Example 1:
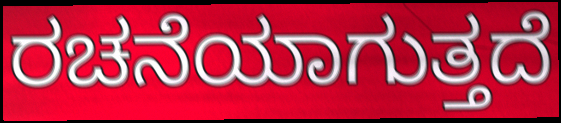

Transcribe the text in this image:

ರಚನೆಯಾಗುತ್ತದೆ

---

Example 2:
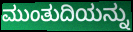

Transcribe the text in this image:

ಮುಂತುದಿಯನ್ನು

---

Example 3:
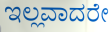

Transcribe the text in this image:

ಇಲ್ಲವಾದರೇ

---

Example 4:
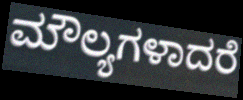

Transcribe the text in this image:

ಮೌಲ್ಯಗಳಾದರೆ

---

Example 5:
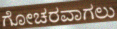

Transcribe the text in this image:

ಗೋಚರವಾಗಲು